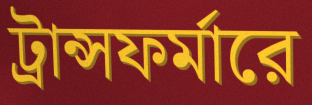
ট্রান্সফর্মারে